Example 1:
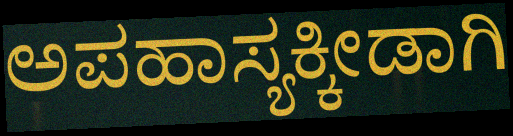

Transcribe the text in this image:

ಅಪಹಾಸ್ಯಕ್ಕೀಡಾಗಿ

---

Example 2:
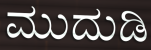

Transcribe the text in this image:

ಮುದುಡಿ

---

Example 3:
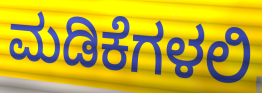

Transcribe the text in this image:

ಮಡಿಕೆಗಳಲಿ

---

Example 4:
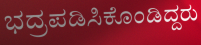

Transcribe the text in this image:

ಭದ್ರಪಡಿಸಿಕೊಂಡಿದ್ದರು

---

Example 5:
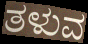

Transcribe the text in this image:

ತಳುವ